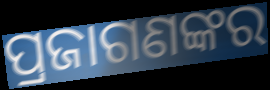
ପ୍ରଜାଗଣଙ୍କର